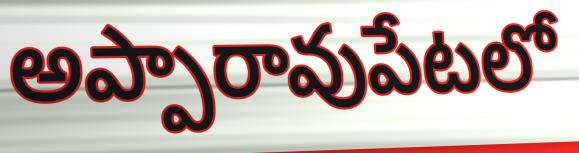
అప్పారావుపేటలో